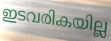
ഇടവരികയില്ല